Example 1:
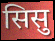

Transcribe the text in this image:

सिसु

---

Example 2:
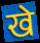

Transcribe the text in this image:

खे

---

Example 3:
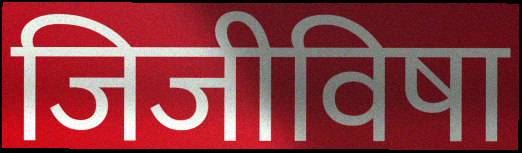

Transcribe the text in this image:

जिजीविषा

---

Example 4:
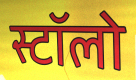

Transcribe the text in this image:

स्टॉलो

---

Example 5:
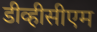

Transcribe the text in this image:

डीव्हीसीएम